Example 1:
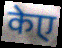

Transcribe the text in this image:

केए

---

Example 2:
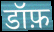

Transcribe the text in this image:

डॉफ़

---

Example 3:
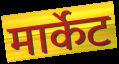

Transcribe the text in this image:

मार्केट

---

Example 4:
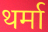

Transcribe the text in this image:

थर्मा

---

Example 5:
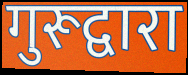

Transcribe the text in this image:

गुरूद्वारा